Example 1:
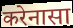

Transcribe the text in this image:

करेनासा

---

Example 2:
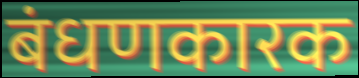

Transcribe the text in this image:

बंधणकारक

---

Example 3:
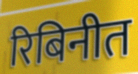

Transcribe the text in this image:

रिबिनीत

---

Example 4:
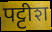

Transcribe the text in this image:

पट्टीश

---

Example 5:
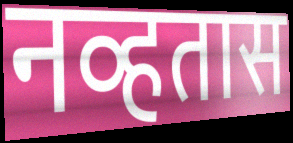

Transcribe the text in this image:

नव्हतास